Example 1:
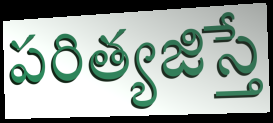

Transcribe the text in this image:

పరిత్యజిస్తే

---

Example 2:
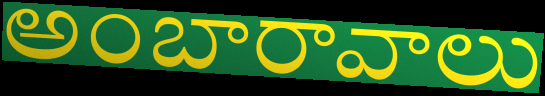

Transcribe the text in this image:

అంబారావాలు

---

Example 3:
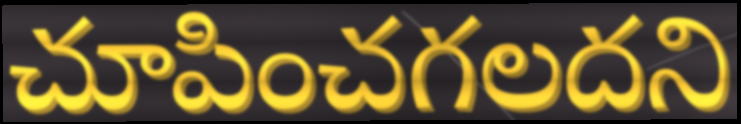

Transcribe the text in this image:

చూపించగలదని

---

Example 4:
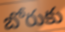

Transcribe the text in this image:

బోరుకు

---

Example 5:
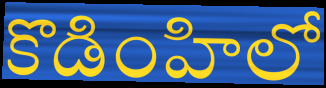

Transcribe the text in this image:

కొడింహిలో